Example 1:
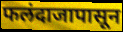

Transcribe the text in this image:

फलंदाजापासून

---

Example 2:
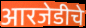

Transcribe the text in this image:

आरजेडीचे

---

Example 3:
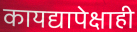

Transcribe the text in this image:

कायद्यापेक्षाही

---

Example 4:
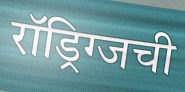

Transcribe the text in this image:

रॉड्रिग्जची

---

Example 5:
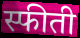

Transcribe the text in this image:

स्फीती